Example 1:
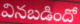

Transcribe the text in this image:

వినబడిందో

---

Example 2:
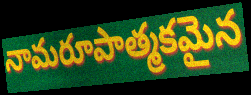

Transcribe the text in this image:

నామరూపాత్మకమైన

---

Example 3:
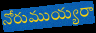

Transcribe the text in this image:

నోరుముయ్యరా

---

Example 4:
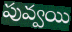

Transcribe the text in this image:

పువ్వయి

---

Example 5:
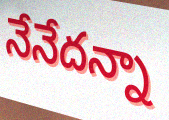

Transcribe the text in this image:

నేనేదన్నా